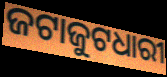
ଜଟାଜୁଟଧାରୀ